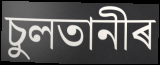
চুলতানীৰ